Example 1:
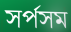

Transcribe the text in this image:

সর্পসম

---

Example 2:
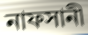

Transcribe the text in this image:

নাফসানী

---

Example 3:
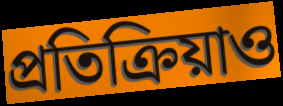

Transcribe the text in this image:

প্রতিক্রিয়াও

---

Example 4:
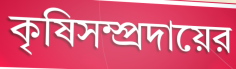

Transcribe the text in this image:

কৃষিসম্প্রদায়ের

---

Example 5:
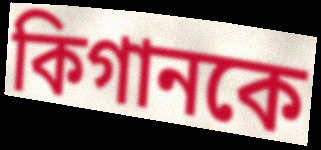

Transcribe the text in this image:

কিগানকে